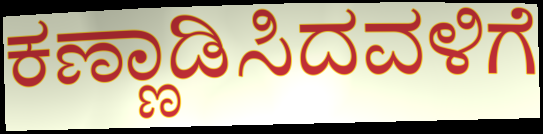
ಕಣ್ಣಾಡಿಸಿದವಳಿಗೆ